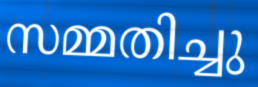
സമ്മതിച്ചു